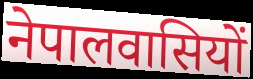
नेपालवासियों